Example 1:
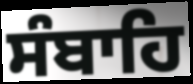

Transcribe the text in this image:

ਸੰਬਾਹਿ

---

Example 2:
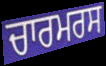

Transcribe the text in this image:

ਚਾਰਮਰਸ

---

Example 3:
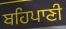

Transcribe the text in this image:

ਬਹਿਪਾਣੀ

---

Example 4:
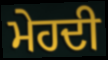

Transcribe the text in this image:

ਮੇਹਦੀ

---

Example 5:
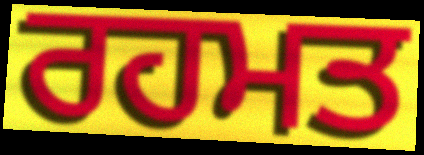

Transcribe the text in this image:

ਰਹਮਤ